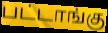
பட்டாங்கு